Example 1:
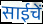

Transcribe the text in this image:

साईचें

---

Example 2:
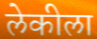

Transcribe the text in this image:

लेकीला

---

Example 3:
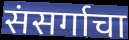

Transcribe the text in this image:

संसर्गाचा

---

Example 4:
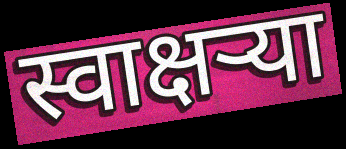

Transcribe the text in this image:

स्वाक्षऱ्या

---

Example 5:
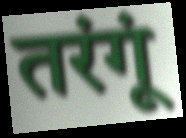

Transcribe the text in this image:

तरंगूं